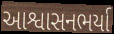
આશ્વાસનભર્યા